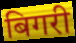
बिगरी